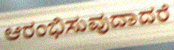
ಆರಂಭಿಸುವುದಾದರೆ